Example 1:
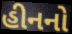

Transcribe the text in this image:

હીનનો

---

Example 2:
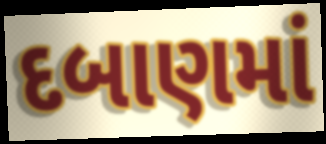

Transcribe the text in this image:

દબાણમાં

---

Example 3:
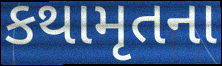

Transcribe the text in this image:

કથામૃતના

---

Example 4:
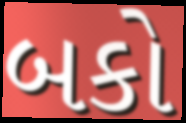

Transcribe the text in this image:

બકો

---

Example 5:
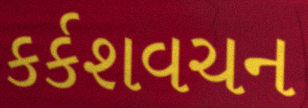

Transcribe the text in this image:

કર્કશવચન